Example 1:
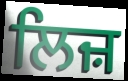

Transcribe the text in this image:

ਲਿਜ਼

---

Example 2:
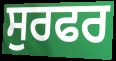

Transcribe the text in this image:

ਸੁਰਫਰ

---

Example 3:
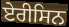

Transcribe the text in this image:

ਏਰੀਸਿਨ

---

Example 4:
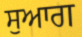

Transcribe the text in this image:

ਸੁਆਗ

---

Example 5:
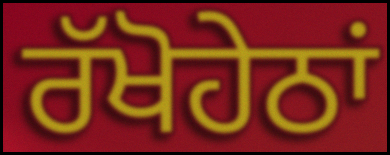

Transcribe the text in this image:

ਰੱਖੋਹੇਠਾਂ